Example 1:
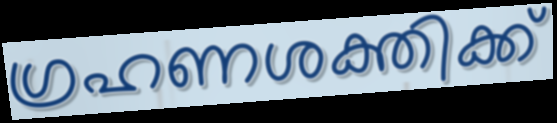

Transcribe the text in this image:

ഗ്രഹണശക്തിക്ക്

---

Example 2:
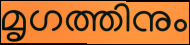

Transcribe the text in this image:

മൃഗത്തിനും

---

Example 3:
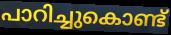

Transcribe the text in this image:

പാറിച്ചുകൊണ്ട്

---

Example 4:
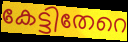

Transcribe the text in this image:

കേട്ടിതേറെ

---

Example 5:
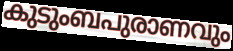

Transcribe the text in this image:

കുടുംബപുരാണവും